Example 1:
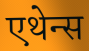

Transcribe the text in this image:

एथेन्स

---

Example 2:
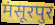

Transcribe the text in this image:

मंसूरपुर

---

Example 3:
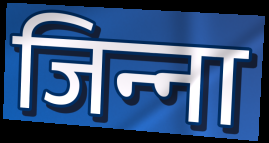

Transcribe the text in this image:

जिन्ना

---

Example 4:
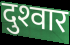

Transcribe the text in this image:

दुश्‍वार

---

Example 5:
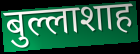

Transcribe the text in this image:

बुल्लाशाह